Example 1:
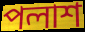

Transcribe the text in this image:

পলাশ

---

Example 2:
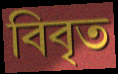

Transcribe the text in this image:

বিবৃত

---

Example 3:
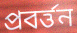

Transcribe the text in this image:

প্ৰবৰ্ত্তন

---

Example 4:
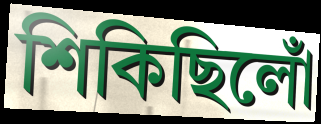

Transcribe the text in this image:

শিকিছিলোঁ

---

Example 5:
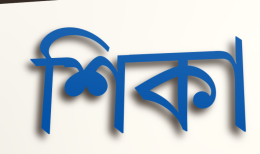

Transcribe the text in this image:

শিকা